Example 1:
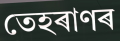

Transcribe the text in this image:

তেহৰাণৰ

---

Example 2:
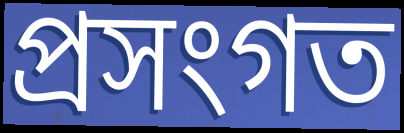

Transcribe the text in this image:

প্ৰসংগত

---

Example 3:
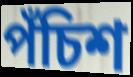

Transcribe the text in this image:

পঁচিশ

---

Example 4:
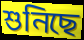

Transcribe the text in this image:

শুনিছে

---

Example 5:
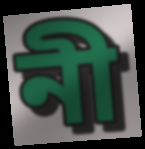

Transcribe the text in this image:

নী